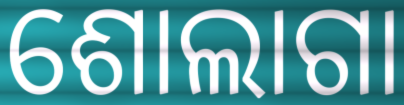
ଶୋଲାଗା